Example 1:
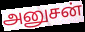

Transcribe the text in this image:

அனுசன்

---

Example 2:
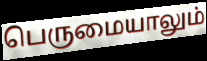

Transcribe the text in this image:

பெருமையாலும்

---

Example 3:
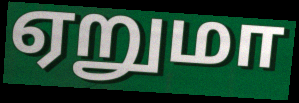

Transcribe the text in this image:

ஏறுமா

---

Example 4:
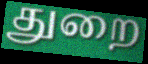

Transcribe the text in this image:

துறை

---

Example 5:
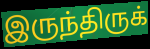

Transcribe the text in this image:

இருந்திருக்